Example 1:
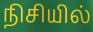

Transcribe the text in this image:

நிசியில்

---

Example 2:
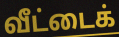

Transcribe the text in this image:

வீட்டைக்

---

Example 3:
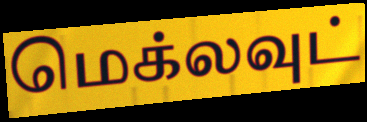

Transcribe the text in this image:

மெக்லவுட்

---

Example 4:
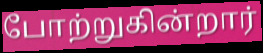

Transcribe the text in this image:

போற்றுகின்றார்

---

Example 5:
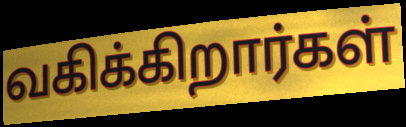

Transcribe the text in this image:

வகிக்கிறார்கள்